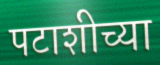
पटाशीच्या